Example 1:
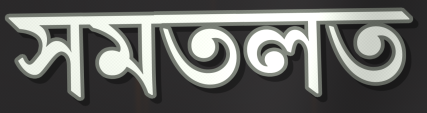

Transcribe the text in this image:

সমতলত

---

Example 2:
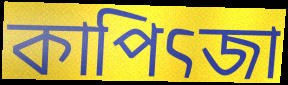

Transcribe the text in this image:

কাপিৎজা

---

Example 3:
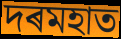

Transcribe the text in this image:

দৰমহাত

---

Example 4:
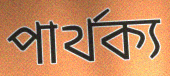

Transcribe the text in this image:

পাৰ্থক্য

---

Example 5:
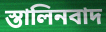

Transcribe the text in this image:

স্তালিনবাদ